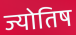
ज्योतिष